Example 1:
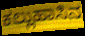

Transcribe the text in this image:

ಕಲ್ಲುಹಾಸಿನ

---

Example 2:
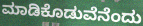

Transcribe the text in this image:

ಮಾಡಿಕೊಡುವೆನೆಂದು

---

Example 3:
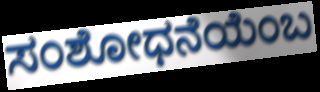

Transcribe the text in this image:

ಸಂಶೋಧನೆಯೆಂಬ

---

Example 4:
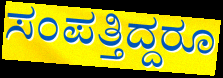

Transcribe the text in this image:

ಸಂಪತ್ತಿದ್ದರೂ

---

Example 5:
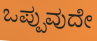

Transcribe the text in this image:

ಒಪ್ಪುವುದೇ